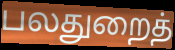
பலதுறைத்